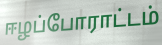
ஈழப்போராட்டம்